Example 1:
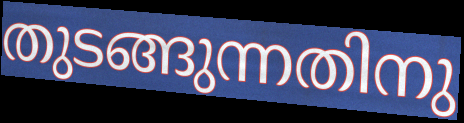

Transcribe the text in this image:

തുടങ്ങുന്നതിനു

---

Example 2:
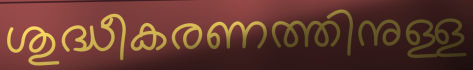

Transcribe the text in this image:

ശുദ്ധീകരണത്തിനുള്ള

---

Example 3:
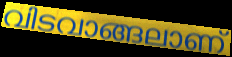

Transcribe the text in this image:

വിടവാങ്ങലാണ്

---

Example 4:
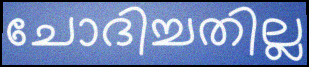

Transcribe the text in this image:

ചോദിച്ചതില്ല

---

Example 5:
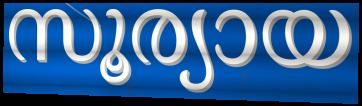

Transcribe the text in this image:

സൂര്യായ